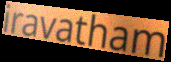
iravatham